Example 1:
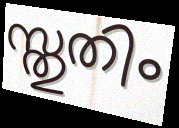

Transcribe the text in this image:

സ്തുതിം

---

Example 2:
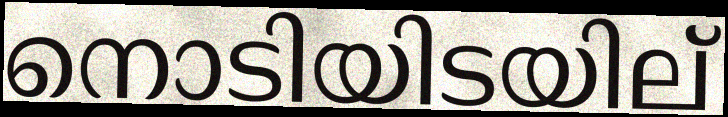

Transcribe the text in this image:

നൊടിയിടയില്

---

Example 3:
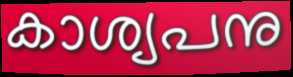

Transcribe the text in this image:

കാശ്യപനു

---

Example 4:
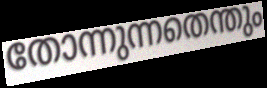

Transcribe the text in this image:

തോന്നുന്നതെന്തും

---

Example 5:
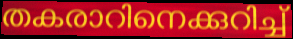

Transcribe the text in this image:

തകരാറിനെക്കുറിച്ച്